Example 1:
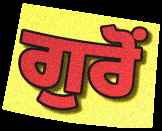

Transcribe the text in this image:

ਗੁਰੋਂ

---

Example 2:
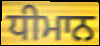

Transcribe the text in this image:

ਧੀਮਾਨ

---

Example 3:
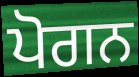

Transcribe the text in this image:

ਪੋਗਨ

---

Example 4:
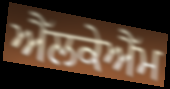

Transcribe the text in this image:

ਐੱਲਕੇਐੱਮ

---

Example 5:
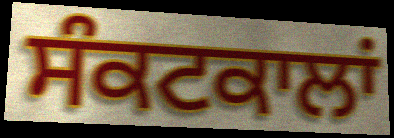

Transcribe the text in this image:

ਸੰਕਟਕਾਲਾਂ